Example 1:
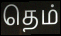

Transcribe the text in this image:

தெம்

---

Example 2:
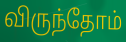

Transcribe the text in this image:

விருந்தோம்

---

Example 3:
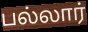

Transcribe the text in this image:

பல்லார்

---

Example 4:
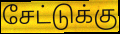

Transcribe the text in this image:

சேட்டுக்கு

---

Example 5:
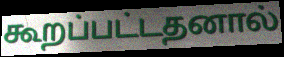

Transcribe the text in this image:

கூறப்பட்டதனால்